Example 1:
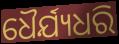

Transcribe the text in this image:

ଧୈର୍ଯ୍ୟଧରି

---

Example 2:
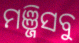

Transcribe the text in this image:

ମଞ୍ଜିସବୁ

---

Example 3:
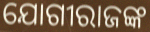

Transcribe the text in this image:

ଯୋଗୀରାଜଙ୍କ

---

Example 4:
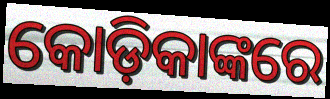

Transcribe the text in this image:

କୋଡ଼ିକାଙ୍କରେ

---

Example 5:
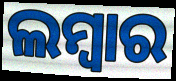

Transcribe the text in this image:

ଲମ୍ୱାର